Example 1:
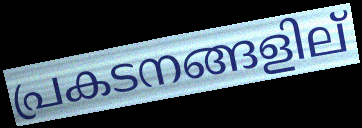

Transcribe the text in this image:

പ്രകടനങ്ങളില്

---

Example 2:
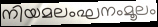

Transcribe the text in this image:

നിയമലംഘനംമൂലം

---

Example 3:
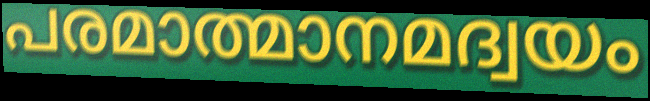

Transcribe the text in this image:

പരമാത്മാനമദ്വയം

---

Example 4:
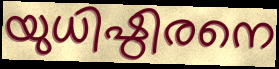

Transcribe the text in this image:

യുധിഷ്ഠിരനെ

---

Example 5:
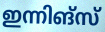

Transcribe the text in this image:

ഇന്നിങ്സ്